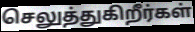
செலுத்துகிறீர்கள்